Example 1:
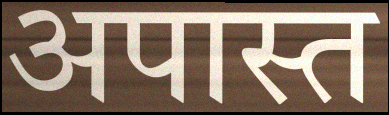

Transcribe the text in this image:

अपास्‍त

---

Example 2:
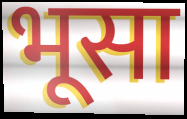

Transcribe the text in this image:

भूसा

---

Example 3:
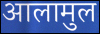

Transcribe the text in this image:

आलामुल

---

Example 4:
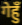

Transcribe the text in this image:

गेहुँ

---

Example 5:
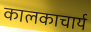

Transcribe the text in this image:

कालकाचार्य